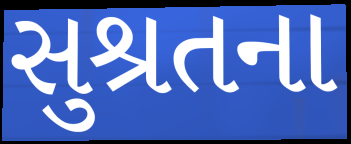
સુશ્રતના